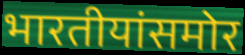
भारतीयांसमोर